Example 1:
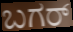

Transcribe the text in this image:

ಬಗರ್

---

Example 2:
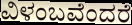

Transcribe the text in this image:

ವಿಳಂಬವೆಂದರೆ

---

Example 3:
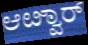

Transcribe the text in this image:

ಆೞ್ವಾರ್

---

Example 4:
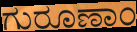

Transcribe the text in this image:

ಗುರೂಣಾಂ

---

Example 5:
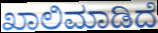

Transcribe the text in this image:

ಖಾಲಿಮಾಡಿದೆ